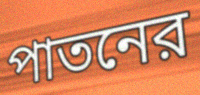
পাতনের